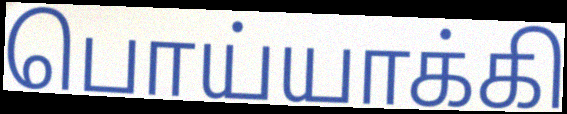
பொய்யாக்கி